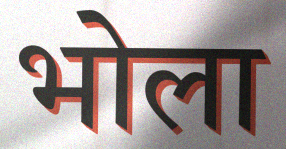
भोला